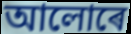
আলোৰে